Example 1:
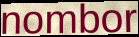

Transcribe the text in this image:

nombor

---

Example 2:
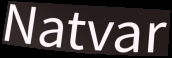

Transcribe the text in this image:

Natvar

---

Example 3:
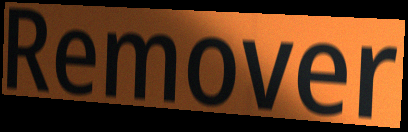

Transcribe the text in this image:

Remover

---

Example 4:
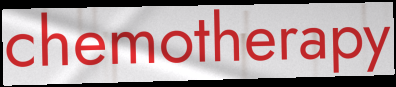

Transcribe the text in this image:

chemotherapy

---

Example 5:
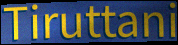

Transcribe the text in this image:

Tiruttani